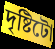
দৃষ্টিটো